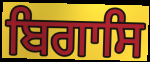
ਬਿਗਾਸਿ